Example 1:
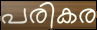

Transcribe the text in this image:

പരികര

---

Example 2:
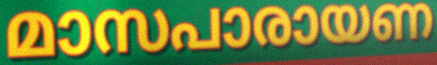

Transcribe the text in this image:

മാസപാരായണ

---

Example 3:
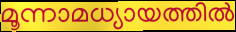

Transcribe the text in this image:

മൂന്നാമധ്യായത്തിൽ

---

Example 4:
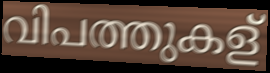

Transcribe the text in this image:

വിപത്തുകള്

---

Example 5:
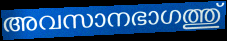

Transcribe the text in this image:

അവസാനഭാഗത്തു്